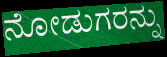
ನೋಡುಗರನ್ನು